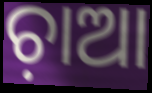
ଚ଼ାଆ